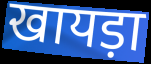
खायड़ा